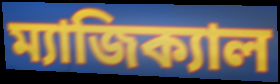
ম্যাজিক্যাল